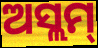
ଅସ୍ଲମ୍